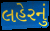
લહેરનું